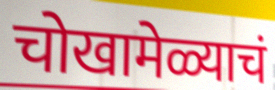
चोखामेळ्याचं